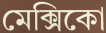
মেক্সিকো